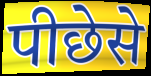
पीछेसे